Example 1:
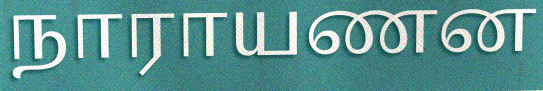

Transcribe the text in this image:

நாராயணன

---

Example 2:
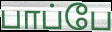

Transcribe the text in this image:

பாப்பே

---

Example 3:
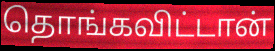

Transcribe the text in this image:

தொங்கவிட்டான்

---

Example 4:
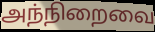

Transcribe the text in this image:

அந்நிறைவை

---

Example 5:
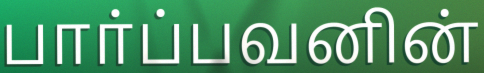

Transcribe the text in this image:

பார்ப்பவனின்